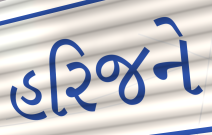
હરિજને